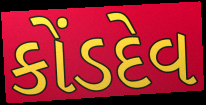
કોંડદેવ